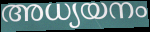
അധ്യയനം